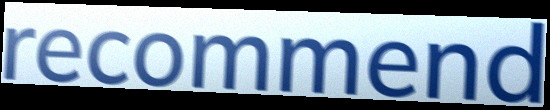
recommend